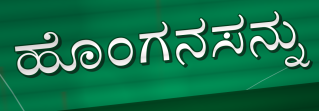
ಹೊಂಗನಸನ್ನು